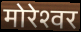
मोरेश्वर